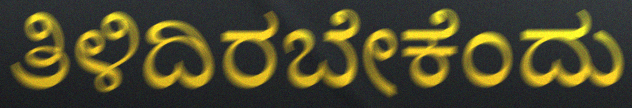
ತಿಳಿದಿರಬೇಕೆಂದು